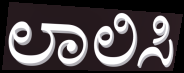
ಲಾಲಿಸಿ